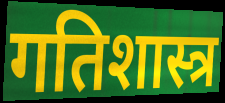
गतिशास्त्र